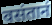
वसंतानं